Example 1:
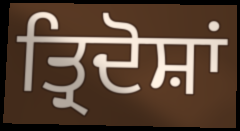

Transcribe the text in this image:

ਤ੍ਰਿਦੋਸ਼ਾਂ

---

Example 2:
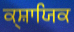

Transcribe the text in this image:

ਕ੍ਸ਼ਾਯਿਕ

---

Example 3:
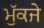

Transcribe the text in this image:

ਮੁੱਕਜੇ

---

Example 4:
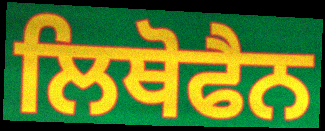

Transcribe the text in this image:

ਲਿਥੋਫੈਨ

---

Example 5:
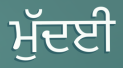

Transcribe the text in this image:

ਮੁੱਦਈ